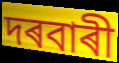
দৰবাৰী